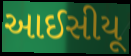
આઈસીયૂ